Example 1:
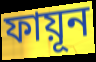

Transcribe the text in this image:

ফায়ূন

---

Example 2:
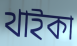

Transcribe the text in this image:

থাইকা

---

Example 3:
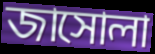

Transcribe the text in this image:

জাসোলা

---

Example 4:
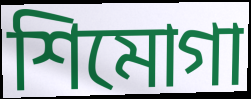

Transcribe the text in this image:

শিমোগা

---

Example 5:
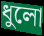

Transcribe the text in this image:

ধুলো